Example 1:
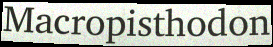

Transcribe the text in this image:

Macropisthodon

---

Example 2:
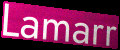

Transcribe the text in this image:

Lamarr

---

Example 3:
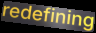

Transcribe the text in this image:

redefining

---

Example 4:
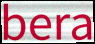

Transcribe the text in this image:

bera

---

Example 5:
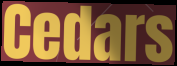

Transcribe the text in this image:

Cedars